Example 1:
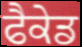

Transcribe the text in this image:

ਫੈਕੇਡ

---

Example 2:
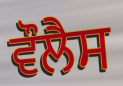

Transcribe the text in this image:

ਵੌਲੈਸ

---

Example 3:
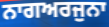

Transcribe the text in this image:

ਨਾਗਅਰਜੁਨਾ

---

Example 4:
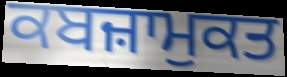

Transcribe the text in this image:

ਕਬਜ਼ਾਮੁਕਤ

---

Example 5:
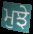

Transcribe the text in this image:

ਮੁਝੇ